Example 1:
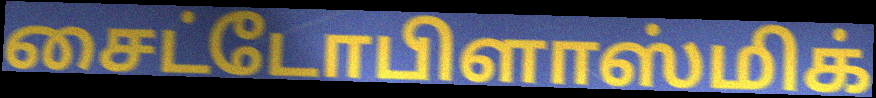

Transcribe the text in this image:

சைட்டோபிளாஸ்மிக்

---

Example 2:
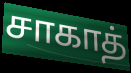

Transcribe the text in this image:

சாகாத்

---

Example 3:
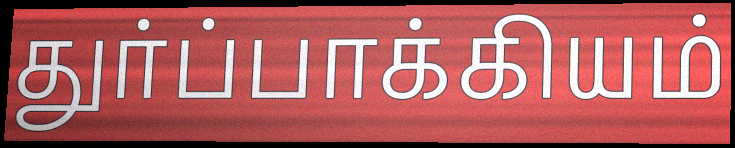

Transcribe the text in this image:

துர்ப்பாக்கியம்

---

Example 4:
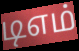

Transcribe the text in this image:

டிஎம்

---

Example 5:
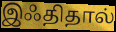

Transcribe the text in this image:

இஃதிதால்